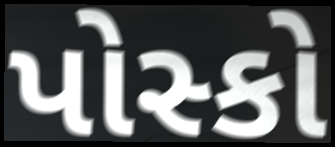
પોસ્કો